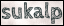
sukalp